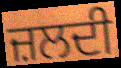
ਜ਼ਲਦੀ